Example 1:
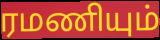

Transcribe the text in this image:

ரமணியும்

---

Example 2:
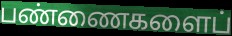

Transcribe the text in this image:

பண்ணைகளைப்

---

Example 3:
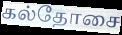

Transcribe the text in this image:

கல்தோசை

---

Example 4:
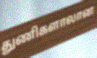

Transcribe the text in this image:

துணிகளாலான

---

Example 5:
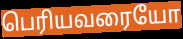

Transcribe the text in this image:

பெரியவரையோ